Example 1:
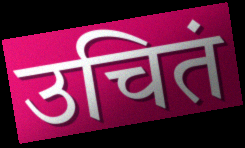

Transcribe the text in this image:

उचितं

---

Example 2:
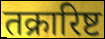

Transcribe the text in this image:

तक्रारिष्ट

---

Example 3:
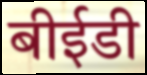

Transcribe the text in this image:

बीईडी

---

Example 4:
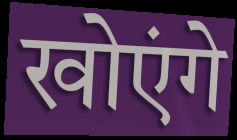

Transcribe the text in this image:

खोएंगे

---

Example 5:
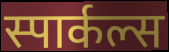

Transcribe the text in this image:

स्पार्कल्स